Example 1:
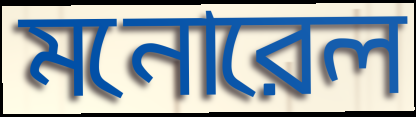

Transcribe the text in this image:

মনোরেল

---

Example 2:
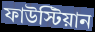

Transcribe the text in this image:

ফাউস্টিয়ান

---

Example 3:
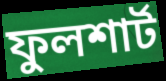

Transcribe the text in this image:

ফুলশার্ট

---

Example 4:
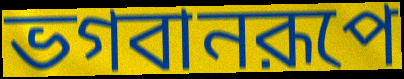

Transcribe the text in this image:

ভগবানরূপে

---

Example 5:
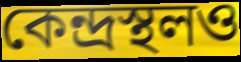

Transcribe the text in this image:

কেন্দ্রস্থলও